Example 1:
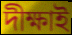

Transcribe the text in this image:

দীক্ষাই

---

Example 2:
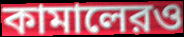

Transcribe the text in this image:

কামালেরও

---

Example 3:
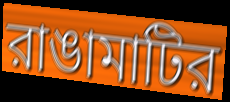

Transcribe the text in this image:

রাঙামাটির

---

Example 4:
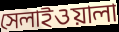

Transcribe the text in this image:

সেলাইওয়ালা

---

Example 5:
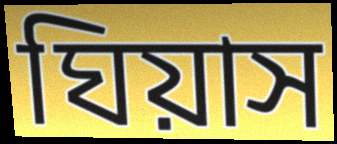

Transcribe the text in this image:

ঘিয়াস